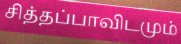
சித்தப்பாவிடமும்